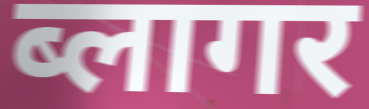
ब्लागर